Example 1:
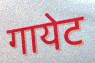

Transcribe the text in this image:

गायेट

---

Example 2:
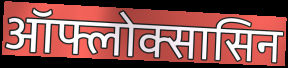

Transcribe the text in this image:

ऑफ्लोक्सासिन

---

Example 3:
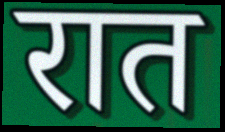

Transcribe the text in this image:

रात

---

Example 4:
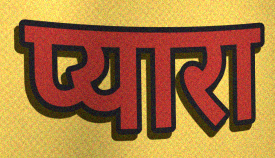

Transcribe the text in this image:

प्यारा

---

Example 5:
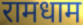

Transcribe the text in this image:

रामधाम